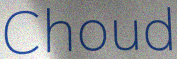
Choud